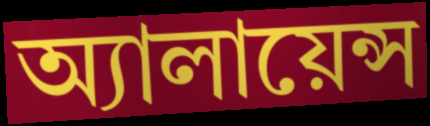
অ্যালায়েন্স